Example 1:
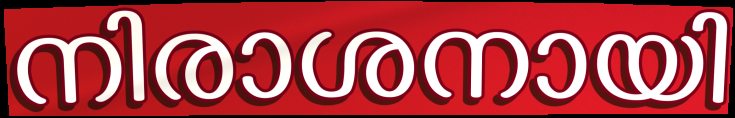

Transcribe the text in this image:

നിരാശനായി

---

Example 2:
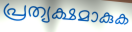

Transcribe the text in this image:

പ്രത്യക്ഷമാകുക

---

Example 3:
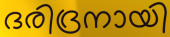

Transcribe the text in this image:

ദരിദ്രനായി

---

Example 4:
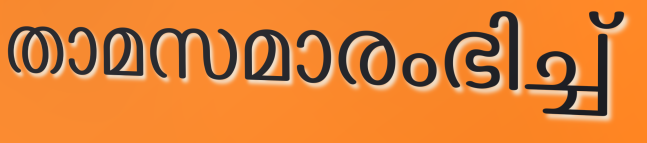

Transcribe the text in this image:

താമസമാരംഭിച്ച്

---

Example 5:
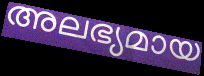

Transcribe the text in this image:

അലഭ്യമായ